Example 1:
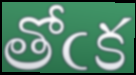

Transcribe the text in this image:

తోఁక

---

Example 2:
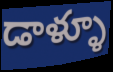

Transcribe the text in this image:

డాళ్ళూ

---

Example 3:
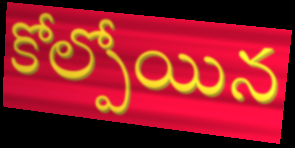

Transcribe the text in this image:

కోల్పోయిన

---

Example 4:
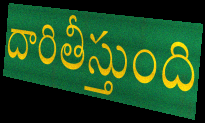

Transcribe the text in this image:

దారితీస్తుంది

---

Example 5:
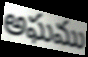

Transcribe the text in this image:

అఘము